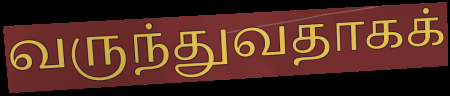
வருந்துவதாகக்